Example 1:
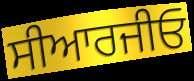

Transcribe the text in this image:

ਸੀਆਰਜੀਓ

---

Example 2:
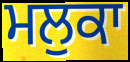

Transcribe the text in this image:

ਮਲੁਕਾ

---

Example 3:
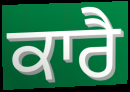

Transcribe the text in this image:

ਕਾਰੈ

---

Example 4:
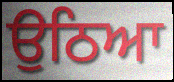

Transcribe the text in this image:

ਉਠਿਆ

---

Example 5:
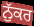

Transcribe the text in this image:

ਨੁੱਕਰ